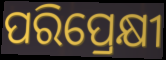
ପରିପ୍ରେକ୍ଷୀ